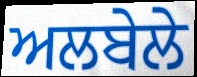
ਅਲਬੇਲੇ